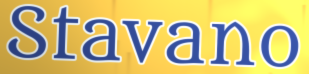
Stavano